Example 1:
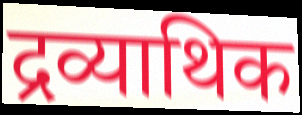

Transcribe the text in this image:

द्रव्याथिक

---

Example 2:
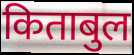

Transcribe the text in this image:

किताबुल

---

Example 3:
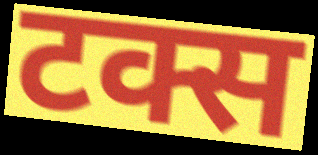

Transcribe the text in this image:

टक्स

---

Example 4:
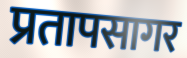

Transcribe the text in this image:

प्रतापसागर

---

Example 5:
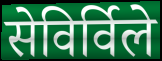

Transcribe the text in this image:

सेविर्विले